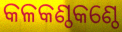
କଳକଣ୍ଠକଣ୍ଠେ